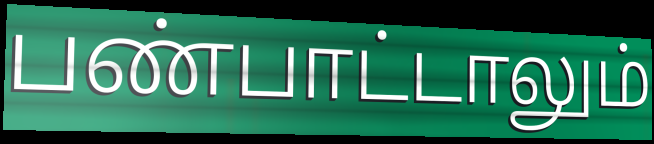
பண்பாட்டாலும்